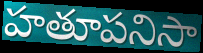
హతూపనిసా